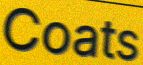
Coats